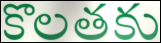
కొలతకు